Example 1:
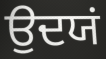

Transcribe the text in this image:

ਉਦਯਂ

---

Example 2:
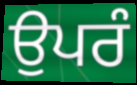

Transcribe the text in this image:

ਉਪਰੰ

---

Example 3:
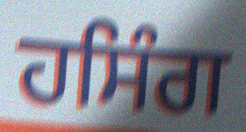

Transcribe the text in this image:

ਹਸਿੰਗ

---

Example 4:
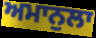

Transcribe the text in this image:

ਅਮਾਨੁਲਾ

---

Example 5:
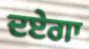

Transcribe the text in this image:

ਦਏਗਾ